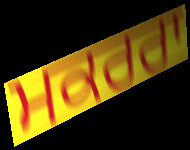
ਮਕਰਰਾ